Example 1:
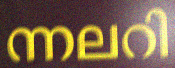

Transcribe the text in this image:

ന്നലറി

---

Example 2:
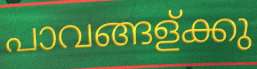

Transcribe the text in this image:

പാവങ്ങള്ക്കു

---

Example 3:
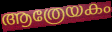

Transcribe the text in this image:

ആത്രേയകം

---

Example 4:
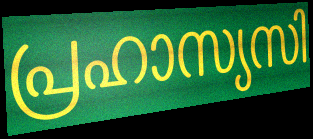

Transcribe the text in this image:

പ്രഹാസ്യസി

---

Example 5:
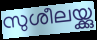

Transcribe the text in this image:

സുശീലയ്ക്കു